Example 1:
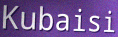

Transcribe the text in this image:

Kubaisi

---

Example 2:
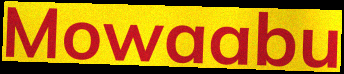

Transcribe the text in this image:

Mowaabu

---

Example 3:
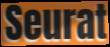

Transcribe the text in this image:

Seurat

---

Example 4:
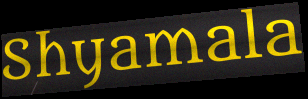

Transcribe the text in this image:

Shyamala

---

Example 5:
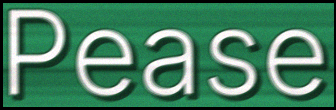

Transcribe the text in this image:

Pease